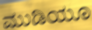
ಮುಡಿಯೂ